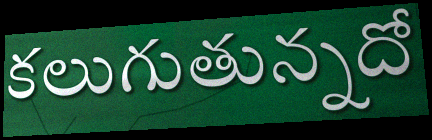
కలుగుతున్నదో